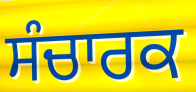
ਸੰਚਾਰਕ